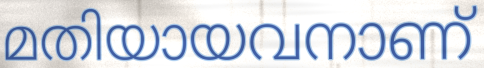
മതിയായവനാണ്